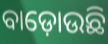
ବାଡ଼ୋଉଛି